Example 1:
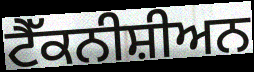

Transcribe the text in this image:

ਟੈੱਕਨੀਸ਼ੀਅਨ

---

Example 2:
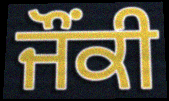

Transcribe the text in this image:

ਜੌਂਕੀ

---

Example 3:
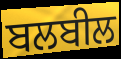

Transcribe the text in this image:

ਬਲਬੀਲ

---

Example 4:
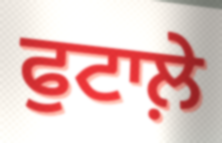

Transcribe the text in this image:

ਫੁਟਾਲ਼ੇ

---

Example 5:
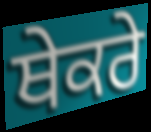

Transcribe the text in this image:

ਥੇਕਰੇ